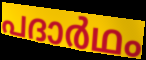
പദാർഥം